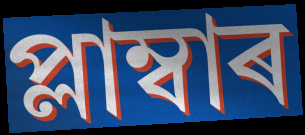
প্লাম্বাৰ